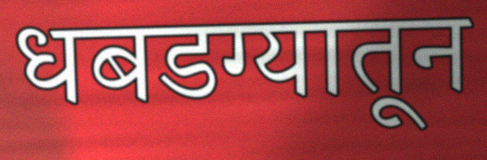
धबडग्यातून